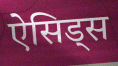
ऐसिड्स